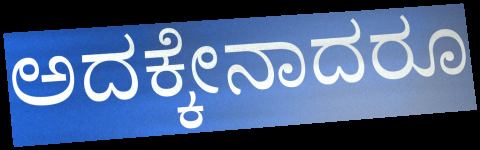
ಅದಕ್ಕೇನಾದರೂ